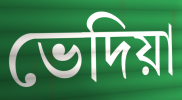
ভেদিয়া